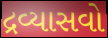
દ્રવ્યાસવો